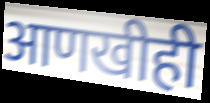
आणखीही